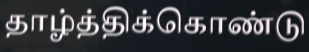
தாழ்த்திக்கொண்டு